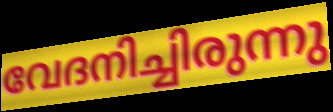
വേദനിച്ചിരുന്നു